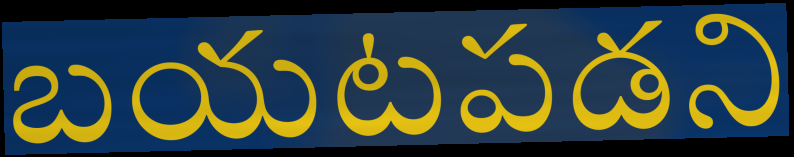
బయటపడని